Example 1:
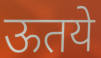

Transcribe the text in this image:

ऊतये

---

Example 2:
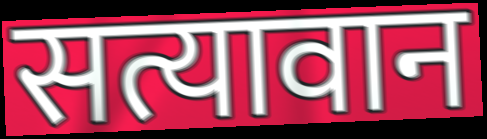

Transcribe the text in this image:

सत्यावान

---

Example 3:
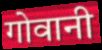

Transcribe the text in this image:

गोवानी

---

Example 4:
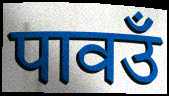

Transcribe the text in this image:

पावउँ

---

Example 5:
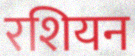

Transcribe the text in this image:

रशियन